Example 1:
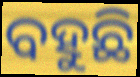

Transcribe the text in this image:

ବହୁଛି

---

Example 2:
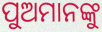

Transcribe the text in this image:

ପୁଅମାନଙ୍କୁ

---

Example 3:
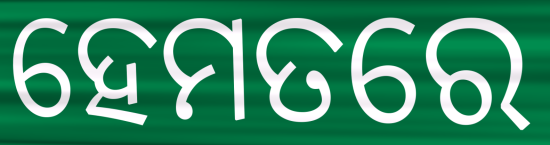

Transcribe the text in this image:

ହେମତରେ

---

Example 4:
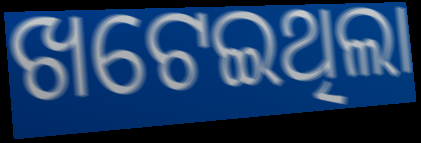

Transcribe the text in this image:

ଖଟେଇଥିଲା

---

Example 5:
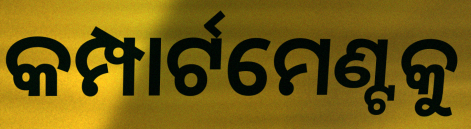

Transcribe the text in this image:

କମ୍ପାର୍ଟମେଣ୍ଟକୁ